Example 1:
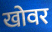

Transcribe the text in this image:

खोवर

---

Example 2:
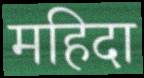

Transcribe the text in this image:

महिदा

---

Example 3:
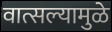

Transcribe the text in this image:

वात्सल्यामुळे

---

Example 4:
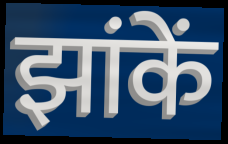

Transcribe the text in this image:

झांकें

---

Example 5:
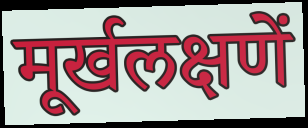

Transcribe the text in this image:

मूर्खलक्षणें